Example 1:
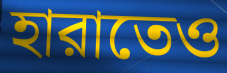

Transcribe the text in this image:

হারাতেও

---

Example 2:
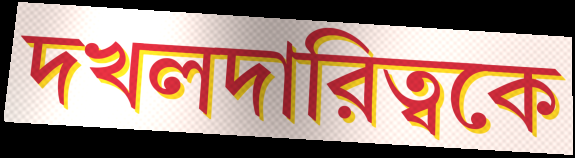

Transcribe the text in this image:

দখলদারিত্বকে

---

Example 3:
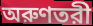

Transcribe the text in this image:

অরুণতরী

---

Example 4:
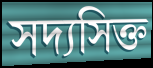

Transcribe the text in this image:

সদ্যসিক্ত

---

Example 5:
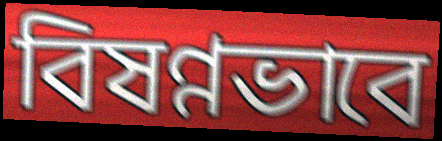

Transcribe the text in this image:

বিষণ্নভাবে